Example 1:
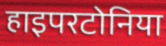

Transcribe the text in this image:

हाइपरटोनिया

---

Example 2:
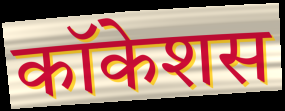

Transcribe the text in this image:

कॉकेशस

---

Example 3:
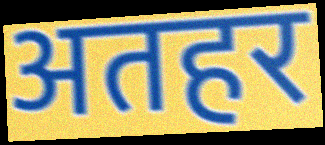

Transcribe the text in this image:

अतहर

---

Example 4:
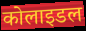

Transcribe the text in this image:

कोलाइडल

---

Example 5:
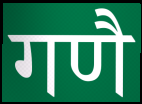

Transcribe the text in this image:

गणै